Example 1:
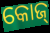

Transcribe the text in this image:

କୋଜ୍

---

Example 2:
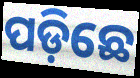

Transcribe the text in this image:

ପଡ଼ିଛେ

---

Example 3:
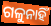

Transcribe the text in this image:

ଗଳୁନାହିଁ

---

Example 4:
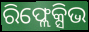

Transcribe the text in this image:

ରିଫ୍ଲେକ୍ସିଭ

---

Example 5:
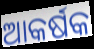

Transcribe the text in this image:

ଆକର୍ଷକ